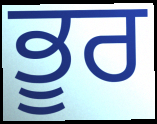
ਭੂਰ